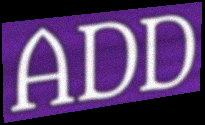
ADD